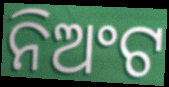
ନିଅଂଟ